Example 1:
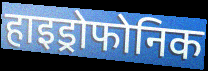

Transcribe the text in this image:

हाइड्रोफोनिक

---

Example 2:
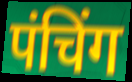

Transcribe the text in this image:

पंचिंग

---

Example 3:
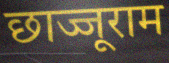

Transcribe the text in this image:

छाज्जूराम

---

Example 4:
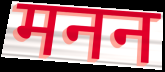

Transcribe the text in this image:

मनन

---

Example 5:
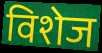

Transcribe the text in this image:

विशेज